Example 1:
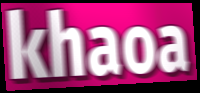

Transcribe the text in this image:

khaoa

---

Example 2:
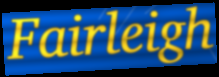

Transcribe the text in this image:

Fairleigh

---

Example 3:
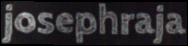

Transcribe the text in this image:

josephraja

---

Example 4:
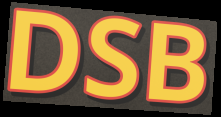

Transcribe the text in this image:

DSB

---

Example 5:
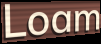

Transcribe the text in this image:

Loam